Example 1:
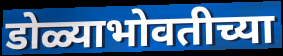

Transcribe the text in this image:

डोळ्याभोवतीच्या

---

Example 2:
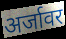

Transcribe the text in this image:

अर्जावर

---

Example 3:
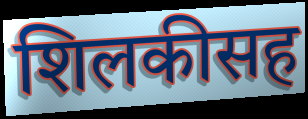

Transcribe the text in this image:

शिलकीसह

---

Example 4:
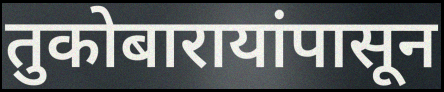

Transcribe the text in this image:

तुकोबारायांपासून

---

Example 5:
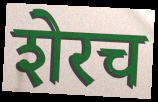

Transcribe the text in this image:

शेरच